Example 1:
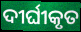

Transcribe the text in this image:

ଦୀର୍ଘୀକୃତ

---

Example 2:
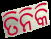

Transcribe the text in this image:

ତିନିକି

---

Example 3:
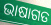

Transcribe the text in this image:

ଭାଷାଗତ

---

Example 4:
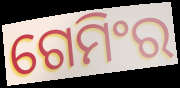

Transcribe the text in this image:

ଗେମିଂର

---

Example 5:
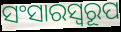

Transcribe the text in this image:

ସଂସାରସ୍ବରୂପ